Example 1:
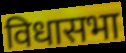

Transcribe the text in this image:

विधासभा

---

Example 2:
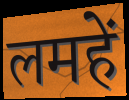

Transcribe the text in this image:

लमहें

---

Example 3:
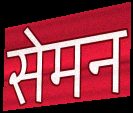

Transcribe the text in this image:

सेमन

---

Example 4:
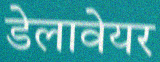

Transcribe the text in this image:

डेलावेयर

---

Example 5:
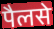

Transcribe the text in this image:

पैलसे